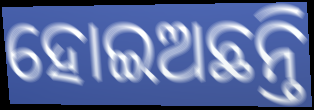
ହୋଇଅଛନ୍ତି